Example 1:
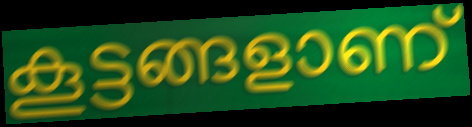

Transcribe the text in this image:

കൂട്ടങ്ങളാണ്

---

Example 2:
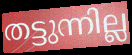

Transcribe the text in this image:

തട്ടുന്നില്ല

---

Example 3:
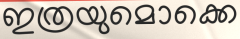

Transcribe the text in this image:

ഇത്രയുമൊക്കെ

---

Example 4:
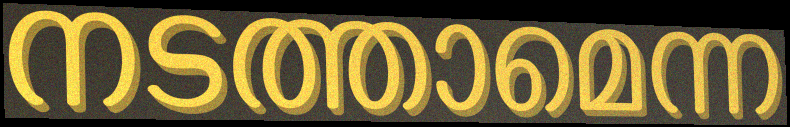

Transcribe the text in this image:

നടത്താമെന്ന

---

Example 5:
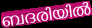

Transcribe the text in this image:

ബദരിയിൽ